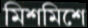
মিশমিশে